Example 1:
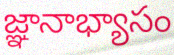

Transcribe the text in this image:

జ్ఞానాభ్యాసం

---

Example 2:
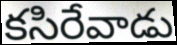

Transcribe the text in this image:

కసిరేవాడు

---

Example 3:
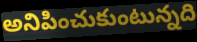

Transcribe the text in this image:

అనిపించుకుంటున్నది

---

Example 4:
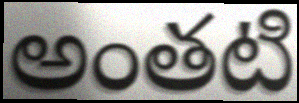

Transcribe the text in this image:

అంతటి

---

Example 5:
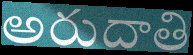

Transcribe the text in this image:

అరుదాతి